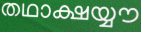
തഥാക്ഷയ്യൗ